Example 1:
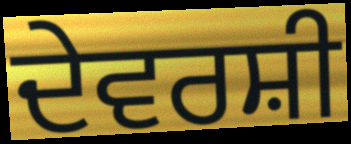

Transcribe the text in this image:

ਦੇਵਰਸ਼ੀ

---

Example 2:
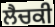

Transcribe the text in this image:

ਲੈਚਕੀ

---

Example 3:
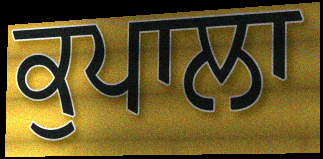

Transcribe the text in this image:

ਕੁਪਾਲਾ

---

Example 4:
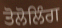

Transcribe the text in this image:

ਤੋਲੋਲਿੰਗ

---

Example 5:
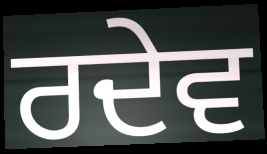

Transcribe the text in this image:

ਰਦੇਵ